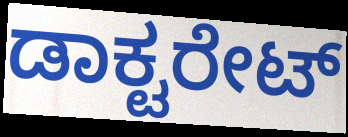
ಡಾಕ್ಟರೇಟ್